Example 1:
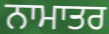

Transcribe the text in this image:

ਨਾਮਾਤਰ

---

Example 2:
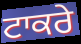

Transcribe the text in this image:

ਟਾਕਰੇ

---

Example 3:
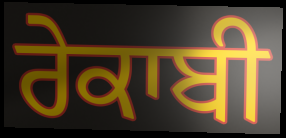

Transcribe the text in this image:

ਰੇਕਾਬੀ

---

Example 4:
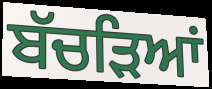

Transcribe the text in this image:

ਬੱਚੜਿਆਂ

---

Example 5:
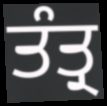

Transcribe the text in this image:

ਤੰਤ੍ਰ